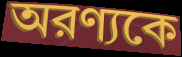
অরণ্যকে